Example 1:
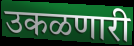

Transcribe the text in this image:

उकळणारी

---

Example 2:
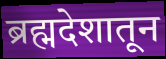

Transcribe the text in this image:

ब्रह्मदेशातून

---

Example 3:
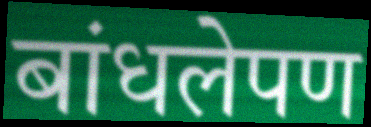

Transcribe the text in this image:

बांधलेपण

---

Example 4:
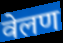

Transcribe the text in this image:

वेलण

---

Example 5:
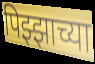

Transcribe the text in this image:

पिझ्झाच्या